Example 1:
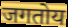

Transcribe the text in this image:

जगतोय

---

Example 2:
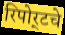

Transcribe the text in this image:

रिपोर्टचे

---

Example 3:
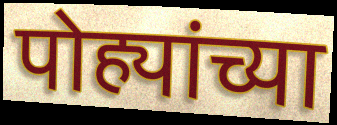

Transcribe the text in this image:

पोह्यांच्या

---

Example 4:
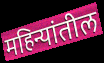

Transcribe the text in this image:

महिन्यांतील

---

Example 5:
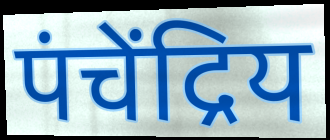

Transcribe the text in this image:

पंचेंद्रिय